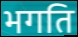
भगति